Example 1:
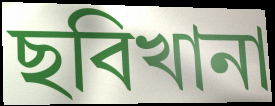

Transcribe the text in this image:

ছবিখানা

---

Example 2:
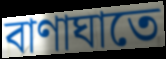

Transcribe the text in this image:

বাণাঘাতে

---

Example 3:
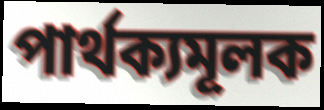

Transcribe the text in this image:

পার্থক্যমূলক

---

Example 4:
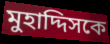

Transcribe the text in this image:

মুহাদ্দিসকে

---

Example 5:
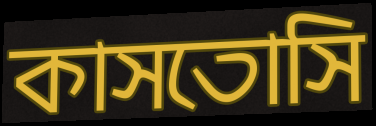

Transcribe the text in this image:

কাসতোসি